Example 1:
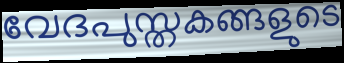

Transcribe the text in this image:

വേദപുസ്തകങ്ങളുടെ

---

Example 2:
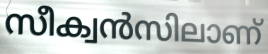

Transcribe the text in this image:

സീക്വൻസിലാണ്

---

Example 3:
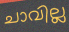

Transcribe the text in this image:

ചാവില്ല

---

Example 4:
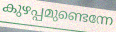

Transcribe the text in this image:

കുഴപ്പമുണ്ടെന്നേ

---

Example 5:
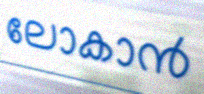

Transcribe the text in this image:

ലോകാൻ